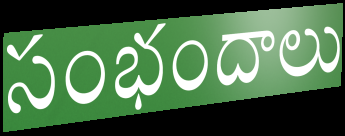
సంభందాలు